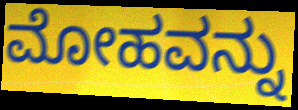
ಮೋಹವನ್ನು